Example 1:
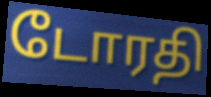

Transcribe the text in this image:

டோரதி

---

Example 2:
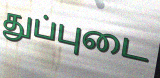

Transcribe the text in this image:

துப்புடை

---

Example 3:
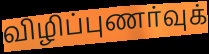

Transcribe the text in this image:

விழிப்புணர்வுக்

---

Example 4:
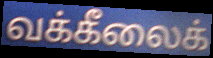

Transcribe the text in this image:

வக்கீலைக்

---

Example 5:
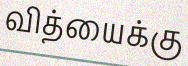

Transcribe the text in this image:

வித்யைக்கு